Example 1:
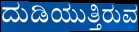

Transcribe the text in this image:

ದುಡಿಯುತ್ತಿರುವ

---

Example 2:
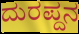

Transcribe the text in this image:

ದುರಪ್ದನ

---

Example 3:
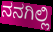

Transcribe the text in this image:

ನನಗಿಲ್ಲಿ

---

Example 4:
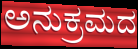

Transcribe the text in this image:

ಅನುಕ್ರಮದ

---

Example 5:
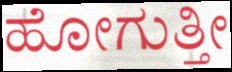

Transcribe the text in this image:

ಹೋಗುತ್ತೀ